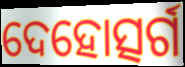
ଦେହୋତ୍ସର୍ଗ